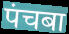
पंचबा